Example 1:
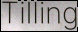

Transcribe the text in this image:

Tilling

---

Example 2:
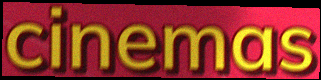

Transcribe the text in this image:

cinemas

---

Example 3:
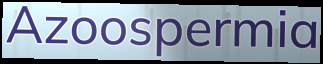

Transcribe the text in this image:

Azoospermia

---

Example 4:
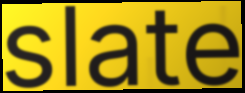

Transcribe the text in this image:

slate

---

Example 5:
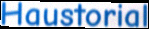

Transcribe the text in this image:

Haustorial